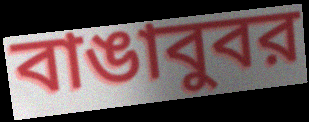
বাঙাবুবর